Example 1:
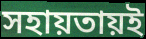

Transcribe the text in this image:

সহায়তায়ই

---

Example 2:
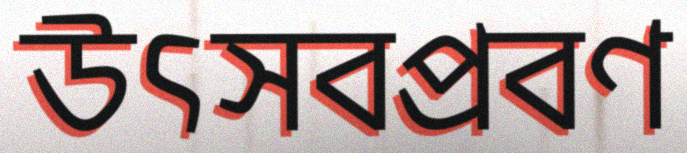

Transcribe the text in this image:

উৎসবপ্রবণ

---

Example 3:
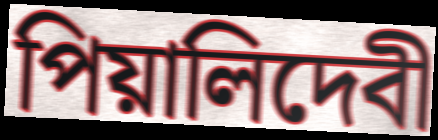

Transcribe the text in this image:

পিয়ালিদেবী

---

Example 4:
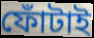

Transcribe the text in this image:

ফোঁটাই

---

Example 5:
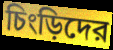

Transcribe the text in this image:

চিংড়িদের